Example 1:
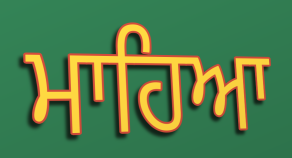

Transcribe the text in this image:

ਮਾਹਿਆ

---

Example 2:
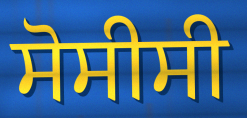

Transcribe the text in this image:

ਸੋਸੀਸੀ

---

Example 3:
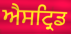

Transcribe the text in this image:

ਐਸਟ੍ਰਿਡ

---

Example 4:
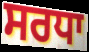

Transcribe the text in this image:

ਸਰਧਾ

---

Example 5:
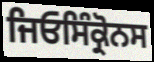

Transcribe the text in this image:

ਜਿਓਸਿੰਕ੍ਰੋਨਸ